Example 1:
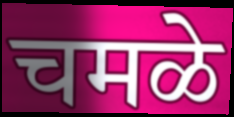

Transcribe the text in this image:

चमळे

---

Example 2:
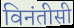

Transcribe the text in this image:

विनंतीसी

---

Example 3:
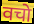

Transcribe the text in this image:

वचो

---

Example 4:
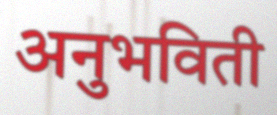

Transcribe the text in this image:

अनुभविती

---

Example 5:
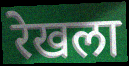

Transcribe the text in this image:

रेखला